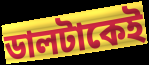
ডালটাকেই